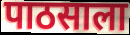
पाठसाला